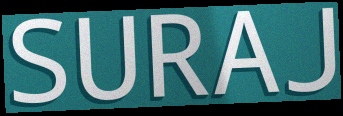
SURAJ